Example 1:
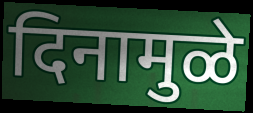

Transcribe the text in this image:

दिनामुळे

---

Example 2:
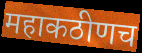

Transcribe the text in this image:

महाकठीणच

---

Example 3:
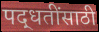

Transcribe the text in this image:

पद्धतींसाठी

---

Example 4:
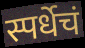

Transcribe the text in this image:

स्पर्धेचं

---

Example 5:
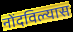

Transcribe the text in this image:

नोंदविल्यास